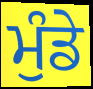
ਮੁੰਡੇ